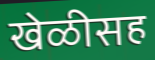
खेळीसह